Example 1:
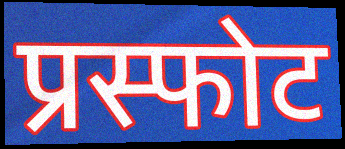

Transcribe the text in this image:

प्रस्फोट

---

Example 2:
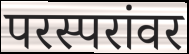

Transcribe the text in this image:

परस्परांवर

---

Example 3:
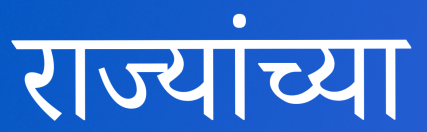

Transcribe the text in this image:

राज्यांच्या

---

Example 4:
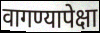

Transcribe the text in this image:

वागण्यापेक्षा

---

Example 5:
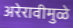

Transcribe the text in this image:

अरेरावीमुळे